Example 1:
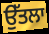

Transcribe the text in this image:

ਉੱਤਲਾ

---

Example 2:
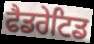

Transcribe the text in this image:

ਫੈਡਰੇਟਿਡ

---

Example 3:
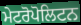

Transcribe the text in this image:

ਮੇਟਰੋਪੋਲਿਟਨ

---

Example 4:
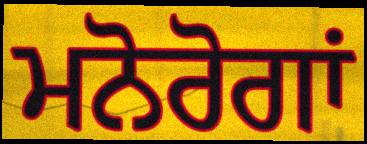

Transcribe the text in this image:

ਮਨੋਰੋਗਾਂ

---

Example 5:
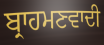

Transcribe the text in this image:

ਬ੍ਰਾਹਮਣਵਾਦੀ